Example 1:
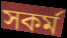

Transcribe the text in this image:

সকর্ম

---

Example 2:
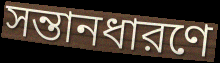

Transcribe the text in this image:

সন্তানধারণে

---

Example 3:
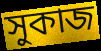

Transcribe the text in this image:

সুকাজ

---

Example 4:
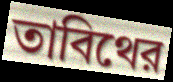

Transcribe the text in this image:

তাবিথের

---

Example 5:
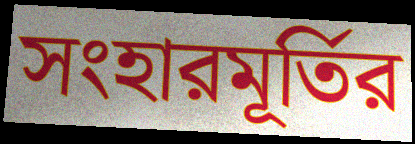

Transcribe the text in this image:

সংহারমূর্তির